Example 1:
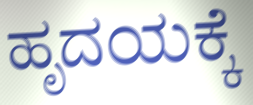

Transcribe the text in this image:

ಹೃದಯಕ್ಕೆ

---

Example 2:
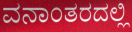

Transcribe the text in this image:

ವನಾಂತರದಲ್ಲಿ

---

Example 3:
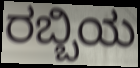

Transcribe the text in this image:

ರಬ್ಬಿಯ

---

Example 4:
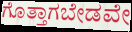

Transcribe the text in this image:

ಗೊತ್ತಾಗಬೇಡವೇ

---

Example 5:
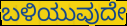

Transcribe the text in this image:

ಬಳಿಯುವುದೇ